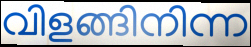
വിളങ്ങിനിന്ന